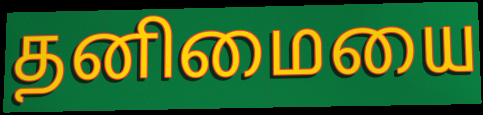
தனிமையை